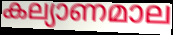
കല്യാണമാല